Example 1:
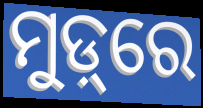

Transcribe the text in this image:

ମୁଡ଼୍‌ରେ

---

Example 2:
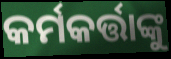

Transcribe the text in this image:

କର୍ମକର୍ତ୍ତାଙ୍କୁ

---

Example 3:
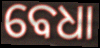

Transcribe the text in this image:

ବେଧା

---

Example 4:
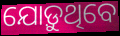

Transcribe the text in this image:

ଯୋଡ଼ୁଥିବେ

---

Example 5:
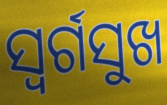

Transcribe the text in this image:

ସ୍ୱର୍ଗସୁଖ